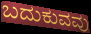
ಬದುಕುವವು